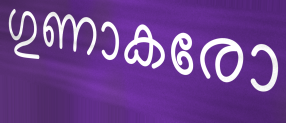
ഗുണാകരോ